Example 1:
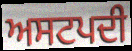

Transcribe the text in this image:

ਅਸਟਪਦੀ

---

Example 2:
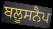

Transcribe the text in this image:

ਬਲੂਸਨੈਪ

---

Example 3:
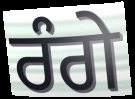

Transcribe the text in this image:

ਰੰਗੇ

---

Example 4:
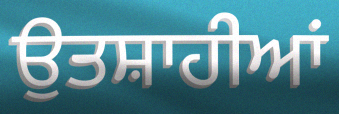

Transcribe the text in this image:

ਉਤਸ਼ਾਹੀਆਂ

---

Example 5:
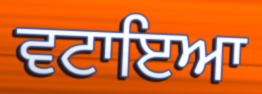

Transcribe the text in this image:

ਵਟਾਇਆ